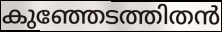
കുഞ്ഞേടത്തിതൻ